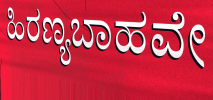
ಹಿರಣ್ಯಬಾಹವೇ